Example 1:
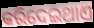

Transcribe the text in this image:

କରିଦେଇଥାଏ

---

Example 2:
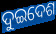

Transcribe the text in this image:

ଦୁଇଦେଶ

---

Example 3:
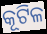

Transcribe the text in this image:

କୂଟିଳ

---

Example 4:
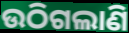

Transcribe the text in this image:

ଉଠିଗଲାଣି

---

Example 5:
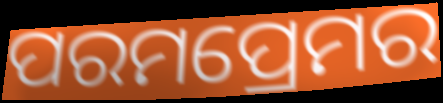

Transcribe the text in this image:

ପରମପ୍ରେମର